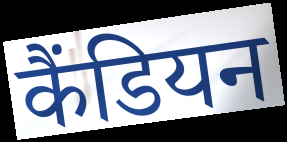
कैंडियन